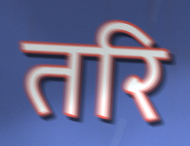
तरि